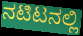
ನಟಿಟನಲ್ಲಿ